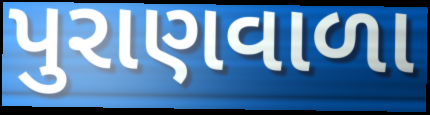
પુરાણવાળા